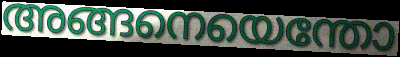
അങ്ങനെയെന്തോ